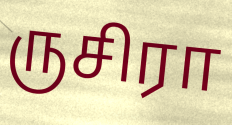
ருசிரா